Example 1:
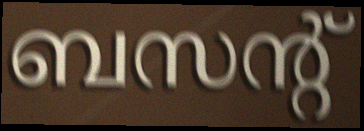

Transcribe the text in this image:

ബസന്റ്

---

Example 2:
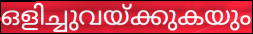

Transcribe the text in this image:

ഒളിച്ചുവയ്ക്കുകയും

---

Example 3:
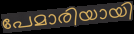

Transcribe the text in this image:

പേമാരിയായി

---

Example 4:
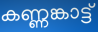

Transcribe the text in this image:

കണ്ണങ്കാട്ട്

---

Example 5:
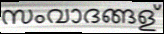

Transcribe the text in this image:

സംവാദങ്ങള്